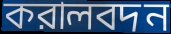
করালবদন